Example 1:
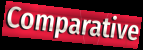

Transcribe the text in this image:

Comparative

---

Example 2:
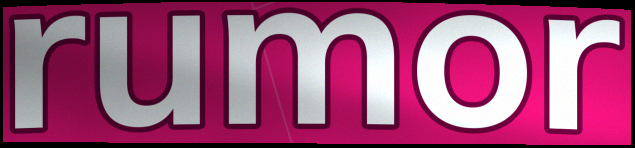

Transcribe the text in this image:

rumor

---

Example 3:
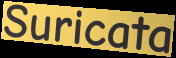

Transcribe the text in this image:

Suricata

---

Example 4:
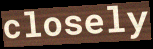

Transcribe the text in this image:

closely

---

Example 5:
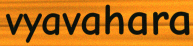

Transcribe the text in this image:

vyavahara